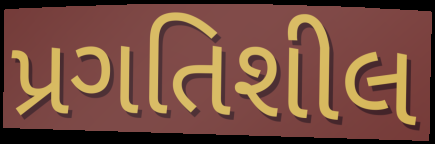
પ્રગતિશીલ